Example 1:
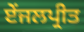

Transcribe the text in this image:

ਏਂਜਲਪ੍ਰੀਤ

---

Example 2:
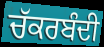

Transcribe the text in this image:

ਚੱਕਰਬੰਦੀ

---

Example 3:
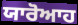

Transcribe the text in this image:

ਯਾਰੋਆਹ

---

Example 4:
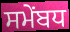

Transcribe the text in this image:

ਸਮੇਂਬਧ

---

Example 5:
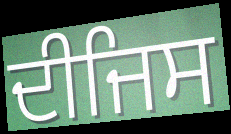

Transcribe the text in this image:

ਦੀਜਿਸ